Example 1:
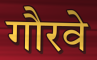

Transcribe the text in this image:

गौरवे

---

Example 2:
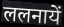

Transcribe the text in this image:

ललनायें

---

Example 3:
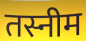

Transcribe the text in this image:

तस्नीम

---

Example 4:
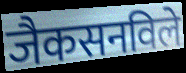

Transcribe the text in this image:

जैकसनविले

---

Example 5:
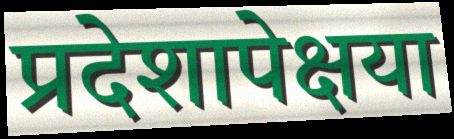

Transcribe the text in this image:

प्रदेशापेक्षया